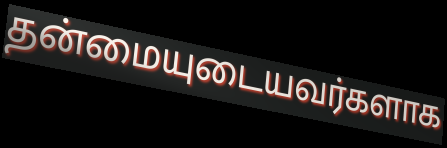
தன்மையுடையவர்களாக